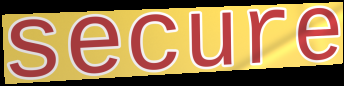
secure